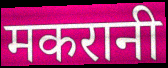
मकरानी